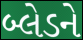
બ્લેડને